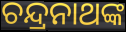
ଚନ୍ଦ୍ରନାଥଙ୍କ